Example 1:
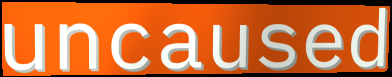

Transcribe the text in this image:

uncaused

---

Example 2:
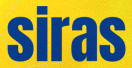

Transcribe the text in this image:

siras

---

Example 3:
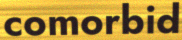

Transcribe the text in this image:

comorbid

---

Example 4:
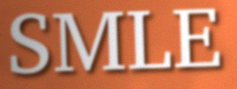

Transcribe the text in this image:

SMLE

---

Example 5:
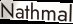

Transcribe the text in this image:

Nathmal